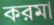
করমা